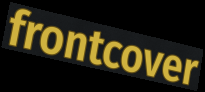
frontcover